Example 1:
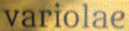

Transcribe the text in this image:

variolae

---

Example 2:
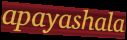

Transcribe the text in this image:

apayashala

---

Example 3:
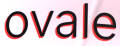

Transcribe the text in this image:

ovale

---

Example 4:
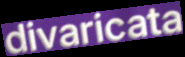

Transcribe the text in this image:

divaricata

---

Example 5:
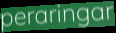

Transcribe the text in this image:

peraringar